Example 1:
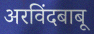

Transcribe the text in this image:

अरविंदबाबू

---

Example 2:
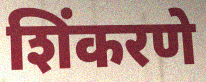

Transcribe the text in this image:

शिंकरणे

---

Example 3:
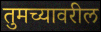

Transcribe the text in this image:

तुमच्यावरील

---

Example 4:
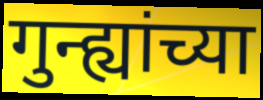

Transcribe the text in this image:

गुन्ह्यांच्या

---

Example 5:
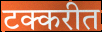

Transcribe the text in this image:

टक्करीत